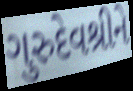
ગુરુદેવશ્રીને